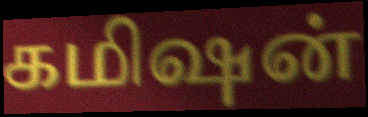
கமிஷன்